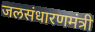
जलसंधारणमंत्री